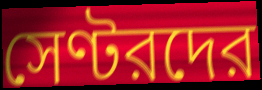
সেণ্টরদের